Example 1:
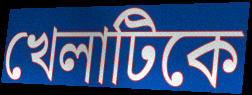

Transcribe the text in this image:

খেলাটিকে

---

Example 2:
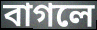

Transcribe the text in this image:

বাগলে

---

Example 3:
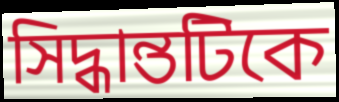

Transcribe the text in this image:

সিদ্ধান্তটিকে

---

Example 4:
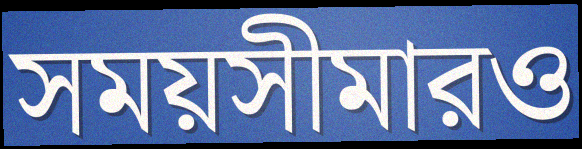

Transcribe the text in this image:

সময়সীমারও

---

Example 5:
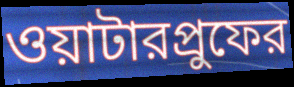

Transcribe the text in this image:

ওয়াটারপ্রুফের